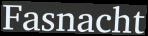
Fasnacht